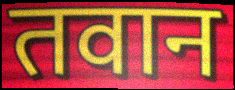
तवान